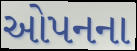
ઓપનના